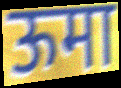
ऊमा